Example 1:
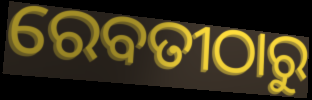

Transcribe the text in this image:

ରେବତୀଠାରୁ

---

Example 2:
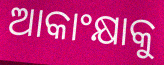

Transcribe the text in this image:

ଆକାଂକ୍ଷାକୁ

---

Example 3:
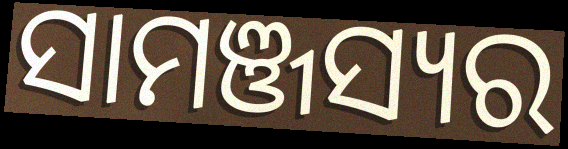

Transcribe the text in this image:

ସାମଞ୍ଜସ୍ୟର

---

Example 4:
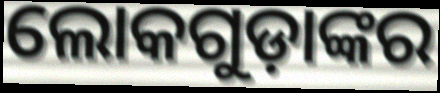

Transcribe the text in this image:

ଲୋକଗୁଡ଼ାଙ୍କର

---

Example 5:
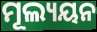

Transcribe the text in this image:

ମୂଲ୍ୟୟନ